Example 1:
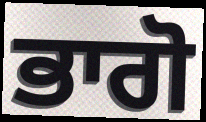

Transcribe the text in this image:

ਭਾਗੋ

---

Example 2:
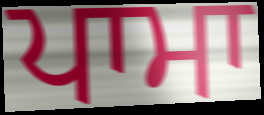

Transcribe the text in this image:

ਪਾਮਾ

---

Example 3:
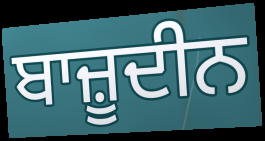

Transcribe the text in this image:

ਬਾਜ਼ੂਦੀਨ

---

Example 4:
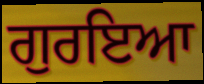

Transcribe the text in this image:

ਗੁਰਇਆ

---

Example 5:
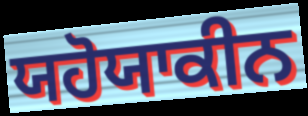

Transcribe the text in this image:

ਯਹੋਯਾਕੀਨ